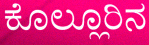
ಕೊಲ್ಲೂರಿನ